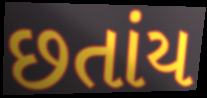
છતાંય